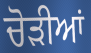
ਚੋੜੀਆਂ